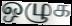
ஒழுக